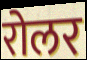
रोलर